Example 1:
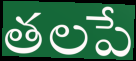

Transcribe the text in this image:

తలపే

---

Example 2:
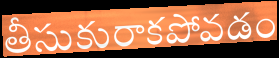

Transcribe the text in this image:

తీసుకురాకపోవడం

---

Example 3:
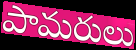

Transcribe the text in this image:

పామరులు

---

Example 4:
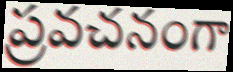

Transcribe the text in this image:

ప్రవచనంగా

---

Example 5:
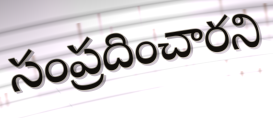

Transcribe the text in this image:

సంప్రదించారని